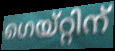
ഗെയ്റ്റിന്